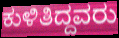
ಕುಳಿತಿದ್ದವರು